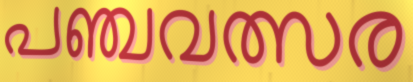
പഞ്ചവത്സര